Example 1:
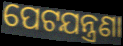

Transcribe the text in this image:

ପେଟଯନ୍ତ୍ରଣା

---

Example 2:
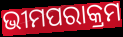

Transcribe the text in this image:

ଭୀମପରାକ୍ରମ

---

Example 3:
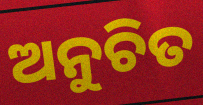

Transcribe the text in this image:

ଅନୁଚିତ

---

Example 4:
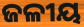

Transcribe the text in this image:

ଜଳୀୟ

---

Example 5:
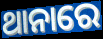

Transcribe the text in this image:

ଥାନାରେ